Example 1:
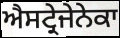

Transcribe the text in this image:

ਐਸਟ੍ਰੇਜੇਨੇਕਾ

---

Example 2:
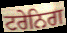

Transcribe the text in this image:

ਟਰੇਨਿਗ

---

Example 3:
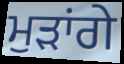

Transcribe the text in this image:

ਮੁੜਾਂਗੇ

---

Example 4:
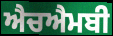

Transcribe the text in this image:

ਐਚਐਮਬੀ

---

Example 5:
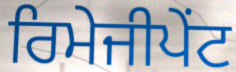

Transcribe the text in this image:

ਰਿਮੇਜੀਪੇਂਟ